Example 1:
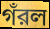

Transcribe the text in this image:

গঁরল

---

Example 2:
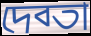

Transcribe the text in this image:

দেব্তা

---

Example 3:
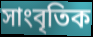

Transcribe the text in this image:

সাংবৃতিক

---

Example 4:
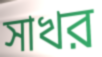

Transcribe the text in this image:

সাখর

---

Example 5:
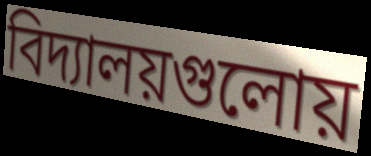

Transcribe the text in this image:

বিদ্যালয়গুলোয়